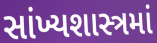
સાંખ્યશાસ્ત્રમાં